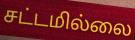
சட்டமில்லை